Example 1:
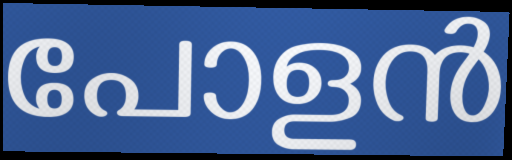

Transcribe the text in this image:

പോളൻ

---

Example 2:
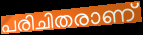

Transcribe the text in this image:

പരിചിതരാണ്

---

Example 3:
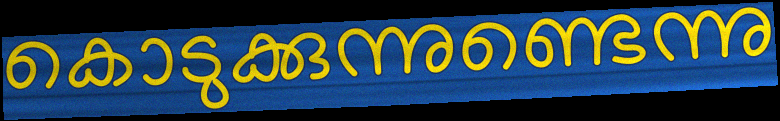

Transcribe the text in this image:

കൊടുക്കുന്നുണ്ടെന്നു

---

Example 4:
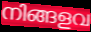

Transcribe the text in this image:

നിങ്ങളവ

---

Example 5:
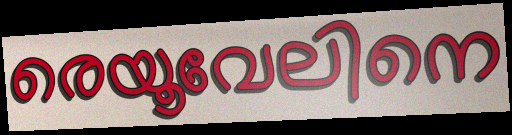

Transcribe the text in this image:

രെയൂവേലിനെ